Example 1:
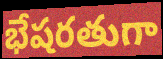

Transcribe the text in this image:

భేషరతుగా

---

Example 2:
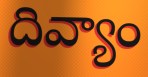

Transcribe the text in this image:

దివ్యాం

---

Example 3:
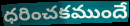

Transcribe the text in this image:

ధరించకముందే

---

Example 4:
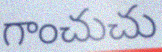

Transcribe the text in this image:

గాంచుచు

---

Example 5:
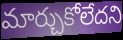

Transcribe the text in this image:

మార్చుకోలేదని